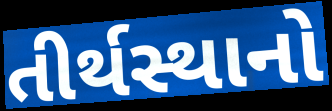
તીર્થસ્થાનો